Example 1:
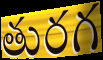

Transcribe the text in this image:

తురగ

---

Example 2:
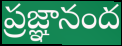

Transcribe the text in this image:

ప్రజ్ఞానంద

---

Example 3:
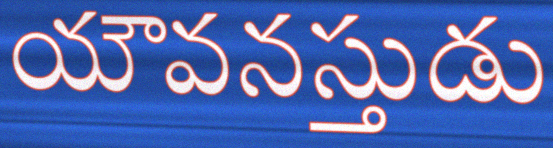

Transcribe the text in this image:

యౌవనస్తుడు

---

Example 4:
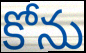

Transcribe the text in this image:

కోను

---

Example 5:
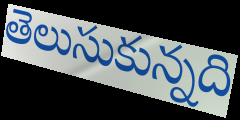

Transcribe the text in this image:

తెలుసుకున్నది